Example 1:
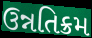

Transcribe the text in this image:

ઉન્નતિક્રમ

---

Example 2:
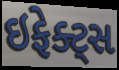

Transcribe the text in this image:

ઇફેક્ટ્સ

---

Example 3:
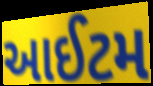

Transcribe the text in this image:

આઈટમ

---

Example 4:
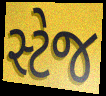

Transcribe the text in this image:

સ્ટેજ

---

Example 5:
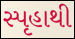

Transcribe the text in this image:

સ્પૃહાથી